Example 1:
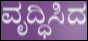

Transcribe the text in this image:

ವೃದ್ಧಿಸಿದ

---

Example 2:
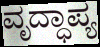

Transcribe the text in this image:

ವೃದ್ಧಾಪ್ಯ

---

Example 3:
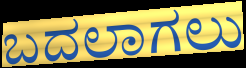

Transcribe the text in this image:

ಬದಲಾಗಲು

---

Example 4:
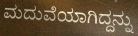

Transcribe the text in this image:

ಮದುವೆಯಾಗಿದ್ದನ್ನು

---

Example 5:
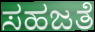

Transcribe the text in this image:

ಸಹಜತೆ